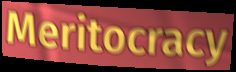
Meritocracy